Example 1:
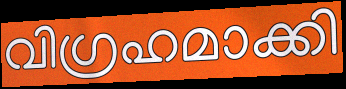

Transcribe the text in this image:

വിഗ്രഹമാക്കി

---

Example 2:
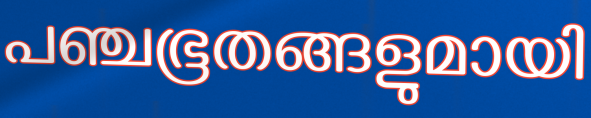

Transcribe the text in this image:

പഞ്ചഭൂതങ്ങളുമായി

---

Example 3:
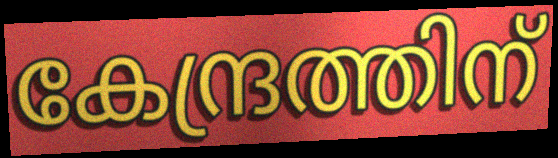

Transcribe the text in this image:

കേന്ദ്രത്തിന്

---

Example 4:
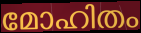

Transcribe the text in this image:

മോഹിതം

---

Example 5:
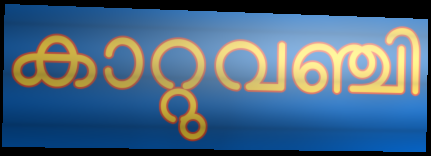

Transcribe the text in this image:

കാറ്റുവഞ്ചി